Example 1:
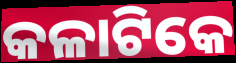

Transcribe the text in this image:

କଳାଟିକେ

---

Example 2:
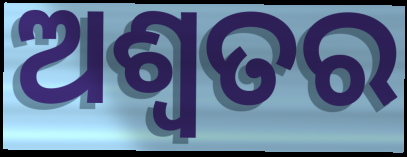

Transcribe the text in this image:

ଅଶ୍ୱତର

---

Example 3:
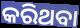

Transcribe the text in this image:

କରିଥବା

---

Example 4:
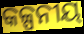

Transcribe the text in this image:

କଳ୍ପନୀୟ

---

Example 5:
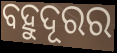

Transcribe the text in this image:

ବହୁଦୂରର